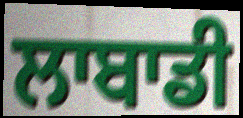
ਲਾਬਾਡੀ